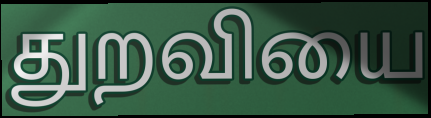
துறவியை